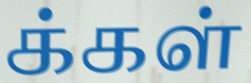
க்கள்